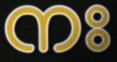
നഃ